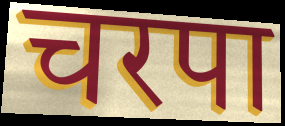
चरपा